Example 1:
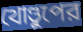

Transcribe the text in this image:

থোণ্ডুপের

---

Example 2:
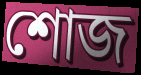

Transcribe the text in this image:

শোজ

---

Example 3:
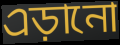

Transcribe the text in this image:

এড়ানো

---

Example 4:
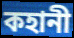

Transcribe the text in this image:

কহানী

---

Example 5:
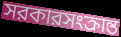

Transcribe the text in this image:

সরকারসংক্রান্ত